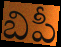
బిపీ